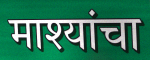
माश्यांचा